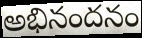
అభినందనం